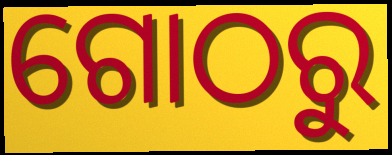
ଗୋଠରୁ